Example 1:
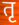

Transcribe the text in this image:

तृ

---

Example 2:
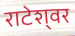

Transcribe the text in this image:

राटेश्वर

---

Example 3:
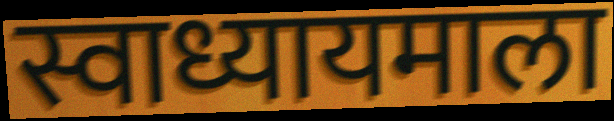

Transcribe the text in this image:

स्वाध्यायमाला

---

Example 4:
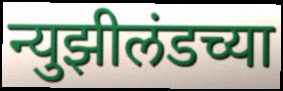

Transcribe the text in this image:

न्युझीलंडच्या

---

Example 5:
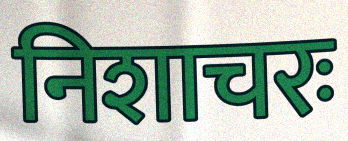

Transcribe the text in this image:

निशाचरः